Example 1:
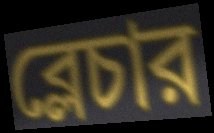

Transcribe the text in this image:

ব্লেচার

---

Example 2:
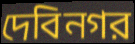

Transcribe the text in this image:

দেবিনগর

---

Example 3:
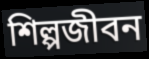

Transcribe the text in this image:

শিল্পজীবন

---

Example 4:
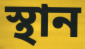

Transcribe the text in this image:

স্থান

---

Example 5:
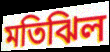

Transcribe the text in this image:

মতিঝিল